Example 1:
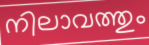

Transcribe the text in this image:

നിലാവത്തും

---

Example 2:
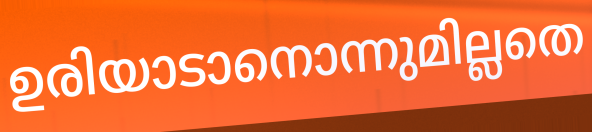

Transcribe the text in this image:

ഉരിയാടാനൊന്നുമില്ലതെ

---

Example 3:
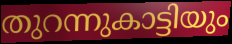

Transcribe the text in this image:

തുറന്നുകാട്ടിയും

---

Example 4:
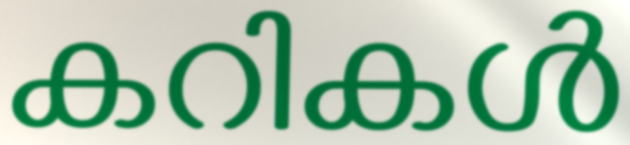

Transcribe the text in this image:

കറികൾ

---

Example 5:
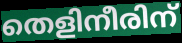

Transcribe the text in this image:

തെളിനീരിന്